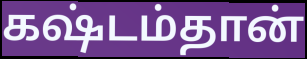
கஷ்டம்தான்